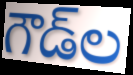
గౌడ్‌ల